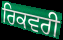
ਰਿਕਵਰੀ